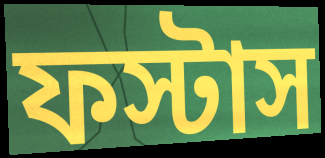
ফস্টাস